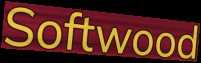
Softwood